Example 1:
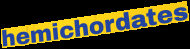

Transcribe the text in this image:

hemichordates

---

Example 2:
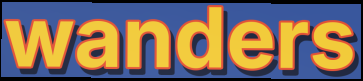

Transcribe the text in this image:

wanders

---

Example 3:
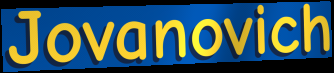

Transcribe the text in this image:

Jovanovich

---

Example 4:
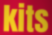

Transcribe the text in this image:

kits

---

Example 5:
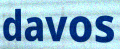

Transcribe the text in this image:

davos